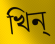
খিন্